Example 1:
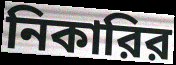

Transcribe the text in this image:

নিকারির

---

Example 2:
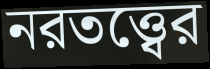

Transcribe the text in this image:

নরতত্ত্বের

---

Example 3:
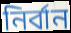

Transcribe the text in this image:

নির্বান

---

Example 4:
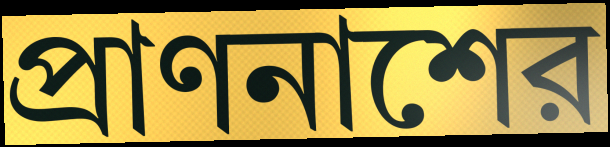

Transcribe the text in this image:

প্রাণনাশের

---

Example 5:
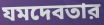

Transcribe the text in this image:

যমদেবতার